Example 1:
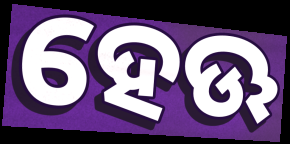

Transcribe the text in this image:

ହେଊ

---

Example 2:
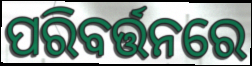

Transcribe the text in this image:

ପରିବର୍ତ୍ତନରେ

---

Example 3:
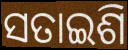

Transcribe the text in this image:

ସତାଇଶି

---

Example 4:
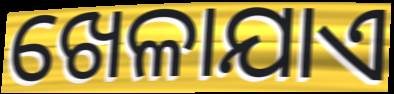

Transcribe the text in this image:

ଖେଳାଯାଏ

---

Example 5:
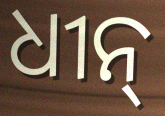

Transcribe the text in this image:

ଧୀନ୍